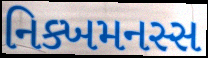
નિક્ખમનસ્સ